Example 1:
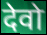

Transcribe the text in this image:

देवो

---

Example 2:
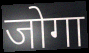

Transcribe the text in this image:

जोगा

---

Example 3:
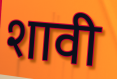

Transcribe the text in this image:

शावी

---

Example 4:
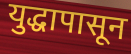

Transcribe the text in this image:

युद्धापासून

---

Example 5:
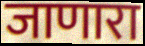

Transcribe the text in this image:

जाणारा